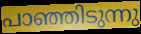
പാഞ്ഞിടുന്നു